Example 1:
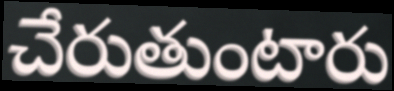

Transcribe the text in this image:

చేరుతుంటారు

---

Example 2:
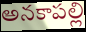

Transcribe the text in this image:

అనకాపల్లి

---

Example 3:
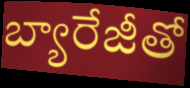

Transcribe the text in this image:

బ్యారేజీతో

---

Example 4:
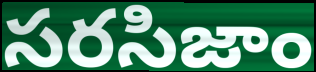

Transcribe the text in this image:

సరసిజాం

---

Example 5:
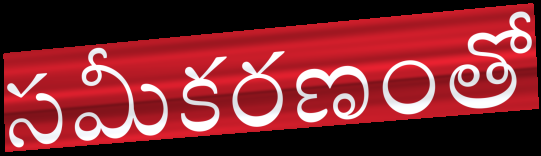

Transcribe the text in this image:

సమీకరణంతో